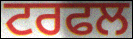
ਟਰਫਲ